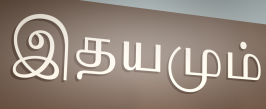
இதயமும்